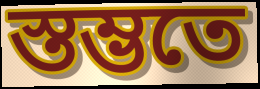
স্তম্ভতে